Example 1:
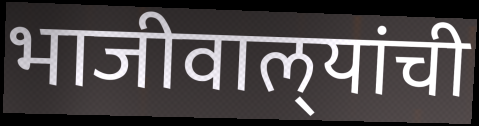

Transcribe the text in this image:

भाजीवाल्यांची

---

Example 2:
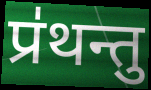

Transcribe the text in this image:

प्र॑थन्तु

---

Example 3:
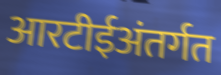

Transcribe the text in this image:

आरटीईअंतर्गत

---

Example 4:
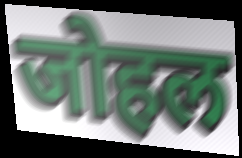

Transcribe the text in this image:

जोहल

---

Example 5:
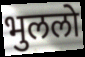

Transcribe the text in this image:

भुललो